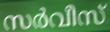
സർവീസ്